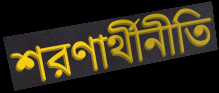
শরণার্থীনীতি